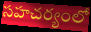
సహచర్యంలో